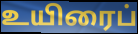
உயிரைப்